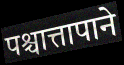
पश्चात्तापाने